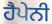
ਹੈਪੇਨੀ